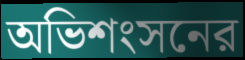
অভিশংসনের